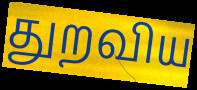
துறவிய